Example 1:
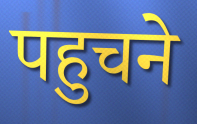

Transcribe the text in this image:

पहुचने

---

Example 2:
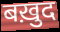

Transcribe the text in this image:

बख़ुद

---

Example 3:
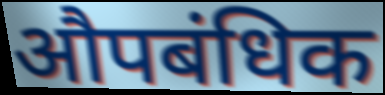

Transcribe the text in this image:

औपबंधिक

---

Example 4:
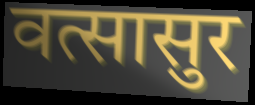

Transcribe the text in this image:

वत्सासुर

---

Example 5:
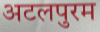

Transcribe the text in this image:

अटलपुरम